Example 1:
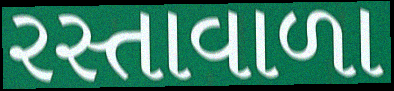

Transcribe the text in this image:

રસ્તાવાળા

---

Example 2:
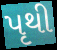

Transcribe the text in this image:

પૃથી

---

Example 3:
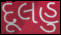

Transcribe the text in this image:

દૂલહુ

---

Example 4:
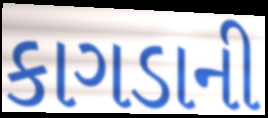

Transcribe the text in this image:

કાગડાની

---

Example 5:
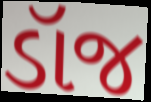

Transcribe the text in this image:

ડૉજ